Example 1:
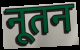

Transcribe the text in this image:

नूतन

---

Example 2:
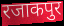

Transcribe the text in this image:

रजाकपुर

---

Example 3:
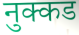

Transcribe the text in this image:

नुक्कड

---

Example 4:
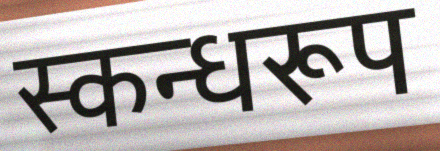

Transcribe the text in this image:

स्कन्धरूप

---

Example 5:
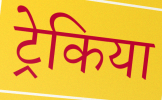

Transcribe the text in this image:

ट्रेकिया